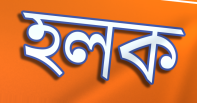
হলক